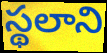
స్థలాని